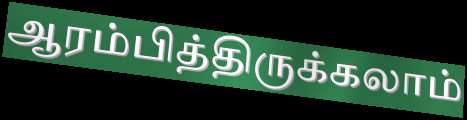
ஆரம்பித்திருக்கலாம்